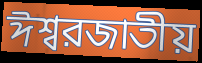
ঈশ্বরজাতীয়